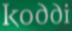
koddi